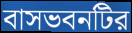
বাসভবনটির